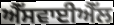
ਐੱਸਵਾਈਐੱਲ